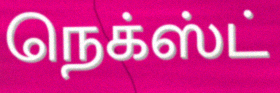
நெக்ஸ்ட்